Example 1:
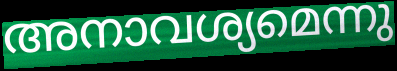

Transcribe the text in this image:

അനാവശ്യമെന്നു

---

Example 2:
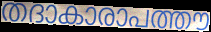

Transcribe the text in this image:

തദാകാരാപത്തൗ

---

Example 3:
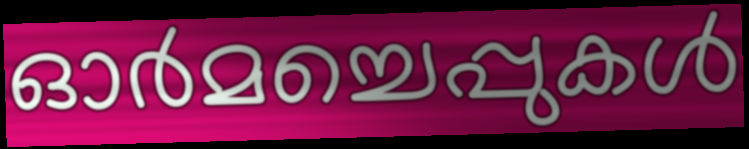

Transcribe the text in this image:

ഓർമച്ചെപ്പുകൾ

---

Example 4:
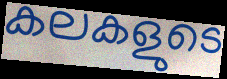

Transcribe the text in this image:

കലകളുടെ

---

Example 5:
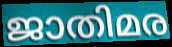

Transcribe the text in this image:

ജാതിമര